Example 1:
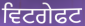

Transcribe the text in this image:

ਵਿਟਗੇਫਟ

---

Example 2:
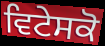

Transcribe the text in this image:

ਵਿਟੇਸਕੋ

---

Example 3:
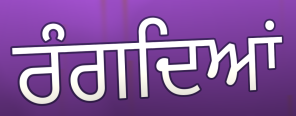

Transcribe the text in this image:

ਰੰਗਦਿਆਂ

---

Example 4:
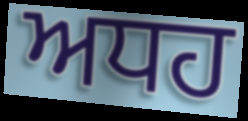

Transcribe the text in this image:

ਅਧਹ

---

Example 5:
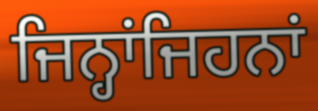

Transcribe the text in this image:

ਜਿਨ੍ਹਾਂਜਿਹਨਾਂ